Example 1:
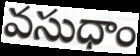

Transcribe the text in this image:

వసుధాం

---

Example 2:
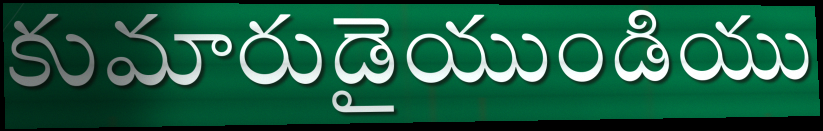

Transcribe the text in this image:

కుమారుడైయుండియు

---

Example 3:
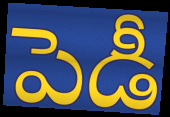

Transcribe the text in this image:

పెడీ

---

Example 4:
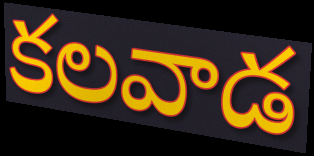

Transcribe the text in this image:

కలవాడ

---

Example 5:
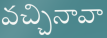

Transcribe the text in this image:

వచ్చినావా